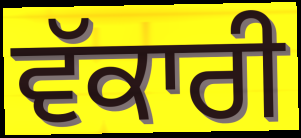
ਵੱਕਾਰੀ